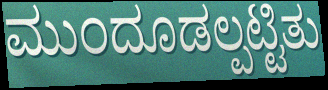
ಮುಂದೂಡಲ್ಪಟ್ಟಿತು